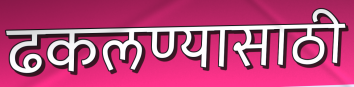
ढकलण्यासाठी